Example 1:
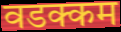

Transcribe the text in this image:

वडक्कम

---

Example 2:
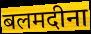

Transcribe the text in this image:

बलमदीना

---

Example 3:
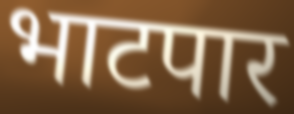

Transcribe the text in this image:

भाटपार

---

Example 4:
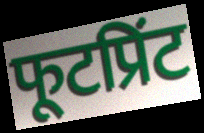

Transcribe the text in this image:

फूटप्रिंट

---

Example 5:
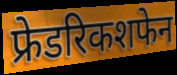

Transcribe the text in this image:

फ्रेडरिकशफेन